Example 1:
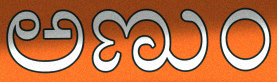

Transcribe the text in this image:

ಅಣುಂ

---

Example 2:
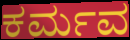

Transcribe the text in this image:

ಕರ್ಮವ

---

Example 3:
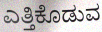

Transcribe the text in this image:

ಎತ್ತಿಕೊಡುವ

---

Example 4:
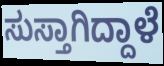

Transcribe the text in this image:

ಸುಸ್ತಾಗಿದ್ದಾಳೆ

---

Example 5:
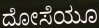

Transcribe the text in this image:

ದೋಸೆಯೂ